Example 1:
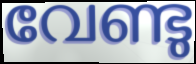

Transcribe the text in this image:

വേണ്ടു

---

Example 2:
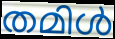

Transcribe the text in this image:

തമിൾ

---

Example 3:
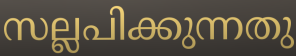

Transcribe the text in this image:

സല്ലപിക്കുന്നതു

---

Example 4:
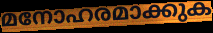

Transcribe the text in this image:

മനോഹരമാക്കുക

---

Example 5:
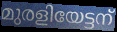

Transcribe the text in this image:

മുരളിയേട്ടന്